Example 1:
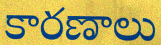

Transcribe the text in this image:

కారణాలు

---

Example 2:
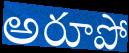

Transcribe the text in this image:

అరూపో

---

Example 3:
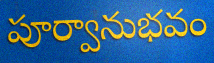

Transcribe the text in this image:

పూర్వానుభవం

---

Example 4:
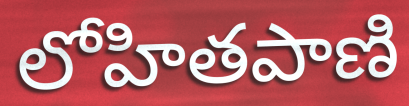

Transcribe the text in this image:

లోహితపాణి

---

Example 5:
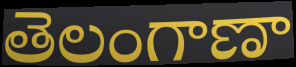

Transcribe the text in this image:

తెలంగాణా